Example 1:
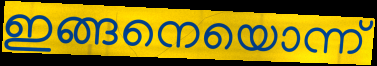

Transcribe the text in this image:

ഇങ്ങനെയൊന്ന്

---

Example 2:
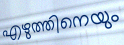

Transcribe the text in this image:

എഴുത്തിനെയും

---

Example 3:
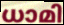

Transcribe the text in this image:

ധാമി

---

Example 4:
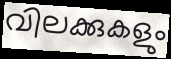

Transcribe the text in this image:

വിലക്കുകളും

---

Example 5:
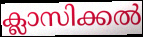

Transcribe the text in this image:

ക്ലാസിക്കൽ